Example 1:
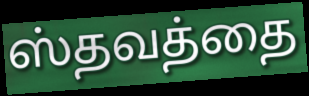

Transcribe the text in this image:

ஸ்தவத்தை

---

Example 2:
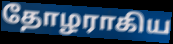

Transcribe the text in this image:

தோழராகிய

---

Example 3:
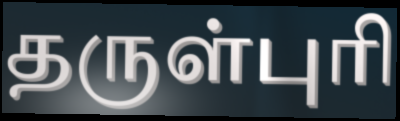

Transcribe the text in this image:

தருள்புரி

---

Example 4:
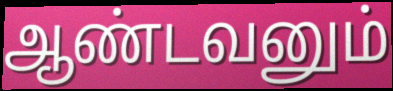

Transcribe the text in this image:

ஆண்டவனும்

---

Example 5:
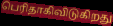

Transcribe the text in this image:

பெரிதாகிவிடுகிறது